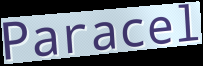
Paracel